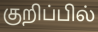
குறிப்பில்